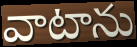
వాటాను